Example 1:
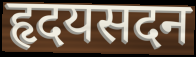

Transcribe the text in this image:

हृदयसदन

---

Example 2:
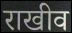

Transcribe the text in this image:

राखीव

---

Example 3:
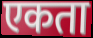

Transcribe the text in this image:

एकता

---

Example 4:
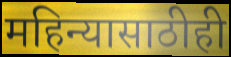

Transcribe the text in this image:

महिन्यासाठीही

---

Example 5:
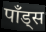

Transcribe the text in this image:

पाँड्स